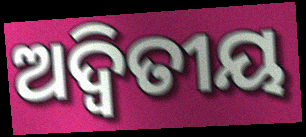
ଅଦ୍ବିତୀୟ